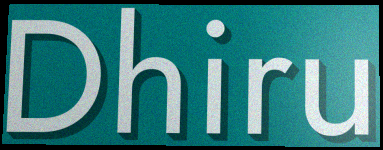
Dhiru